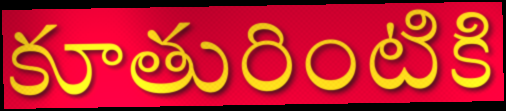
కూతురింటికి